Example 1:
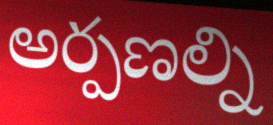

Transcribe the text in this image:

అర్పణల్ని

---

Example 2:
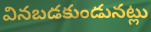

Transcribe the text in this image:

వినబడకుండునట్లు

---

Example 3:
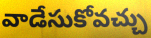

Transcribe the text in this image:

వాడేసుకోవచ్చు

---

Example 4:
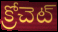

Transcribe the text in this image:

క్రోచెట్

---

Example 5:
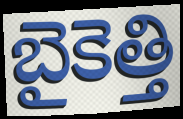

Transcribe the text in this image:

బైకెత్తి